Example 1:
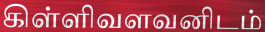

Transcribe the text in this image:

கிள்ளிவளவனிடம்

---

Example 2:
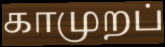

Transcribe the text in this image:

காமுறப்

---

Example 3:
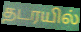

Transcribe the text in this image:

தடரயில்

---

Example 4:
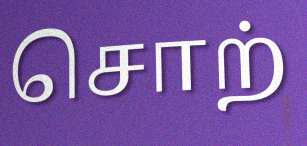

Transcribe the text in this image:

சொற்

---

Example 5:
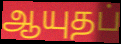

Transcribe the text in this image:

ஆயுதப்